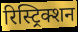
रिस्ट्रिक्शन